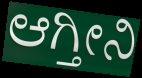
ಆಗ್ತೀನಿ